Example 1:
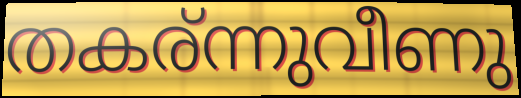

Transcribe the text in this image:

തകര്ന്നുവീണു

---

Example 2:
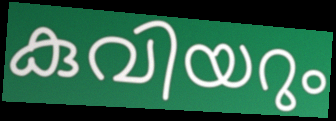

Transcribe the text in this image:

കുവിയറും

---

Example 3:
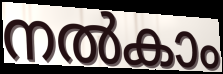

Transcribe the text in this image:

നൽകാം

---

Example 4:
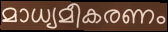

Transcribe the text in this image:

മാധ്യമീകരണം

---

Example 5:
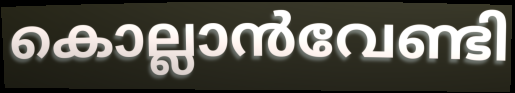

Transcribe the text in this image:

കൊല്ലാൻവേണ്ടി